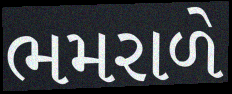
ભમરાળે